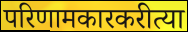
परिणामकारकरीत्या